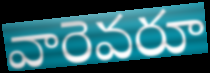
వారెవరూ